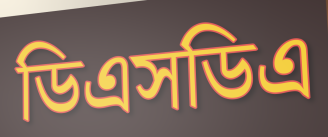
ডিএসডিএ